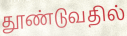
தூண்டுவதில்